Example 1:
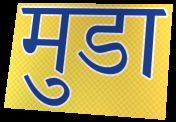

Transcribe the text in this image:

मुडा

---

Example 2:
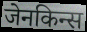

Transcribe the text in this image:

जेनकिन्स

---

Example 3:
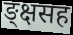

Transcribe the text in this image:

ङ्क्षसह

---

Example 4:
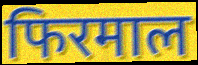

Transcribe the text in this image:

फिरमाल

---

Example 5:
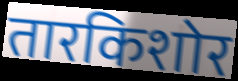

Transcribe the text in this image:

तारकिशोर